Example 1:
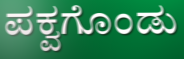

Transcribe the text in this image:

ಪಕ್ವಗೊಂಡು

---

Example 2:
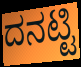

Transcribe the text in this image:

ದನಟ್ಟಿ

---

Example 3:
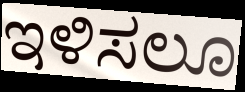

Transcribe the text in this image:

ಇಳಿಸಲೂ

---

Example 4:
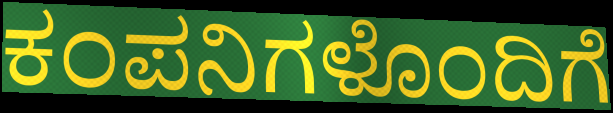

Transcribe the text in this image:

ಕಂಪನಿಗಳೊಂದಿಗೆ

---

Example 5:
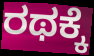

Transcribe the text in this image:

ರಥಕ್ಕೆ